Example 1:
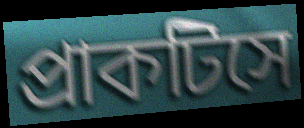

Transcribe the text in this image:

প্রাকটিসে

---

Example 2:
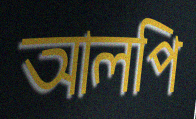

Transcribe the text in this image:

আলপি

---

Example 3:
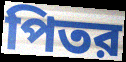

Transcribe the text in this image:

পিতর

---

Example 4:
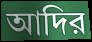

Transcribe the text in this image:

আদির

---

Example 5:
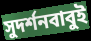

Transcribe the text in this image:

সুদর্শনবাবুই